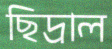
ছিদ্রাল